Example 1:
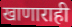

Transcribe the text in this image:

खाणाराही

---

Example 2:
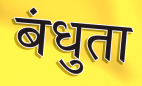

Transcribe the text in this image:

बंधुता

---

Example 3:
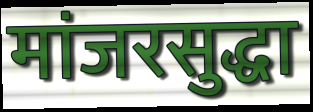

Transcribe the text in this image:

मांजरसुद्धा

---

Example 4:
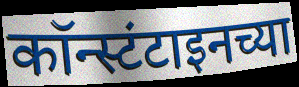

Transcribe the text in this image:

कॉन्स्टंटाइनच्या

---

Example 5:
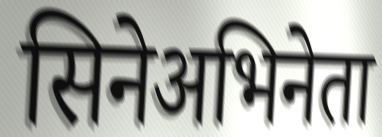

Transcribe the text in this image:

सिनेअभिनेता